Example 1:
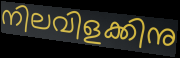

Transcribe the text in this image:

നിലവിളക്കിനു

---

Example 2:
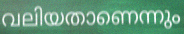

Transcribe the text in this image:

വലിയതാണെന്നും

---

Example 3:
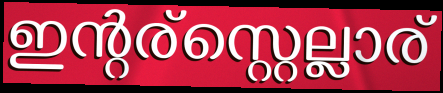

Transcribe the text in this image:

ഇന്റര്സ്റ്റെല്ലാര്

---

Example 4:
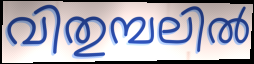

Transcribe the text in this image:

വിതുമ്പലിൽ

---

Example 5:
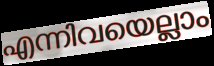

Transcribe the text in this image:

എന്നിവയെല്ലാം